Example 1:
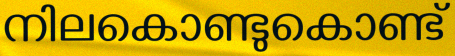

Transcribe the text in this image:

നിലകൊണ്ടുകൊണ്ട്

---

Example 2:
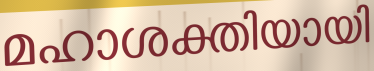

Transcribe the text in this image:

മഹാശക്തിയായി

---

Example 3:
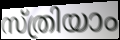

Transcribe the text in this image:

സ്ത്രിയാം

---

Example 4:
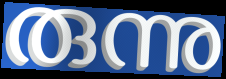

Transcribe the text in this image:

രുന്നു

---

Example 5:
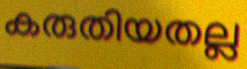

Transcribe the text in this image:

കരുതിയതല്ല